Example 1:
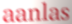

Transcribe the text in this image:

aanlas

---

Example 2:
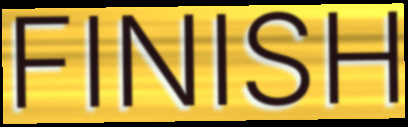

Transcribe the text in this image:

FINISH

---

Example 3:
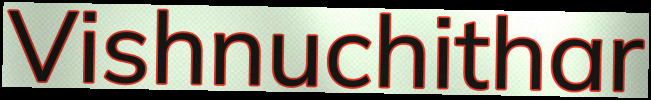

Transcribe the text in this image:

Vishnuchithar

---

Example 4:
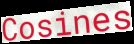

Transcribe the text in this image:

Cosines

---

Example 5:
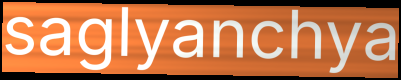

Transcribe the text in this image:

saglyanchya